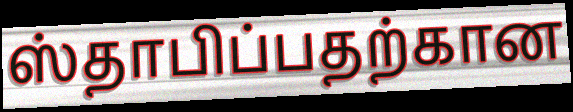
ஸ்தாபிப்பதற்கான